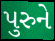
પુરુને